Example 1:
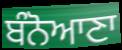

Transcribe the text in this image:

ਬੰਨੋਆਣਾ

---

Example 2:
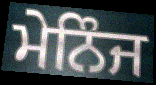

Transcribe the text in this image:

ਮੇਨਿੰਜ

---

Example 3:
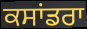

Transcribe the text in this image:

ਕਸਾਂਡਰਾ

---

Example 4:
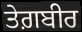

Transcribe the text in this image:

ਤੇਗ਼ਬੀਰ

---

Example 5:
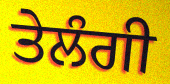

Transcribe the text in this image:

ਤੇਲੰਗੀ